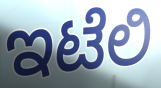
ಇಟೆಲಿ